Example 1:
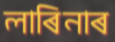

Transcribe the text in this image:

লাৰিনাৰ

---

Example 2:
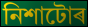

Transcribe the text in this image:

নিশাটোৰ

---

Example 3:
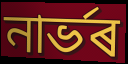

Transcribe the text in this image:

নাৰ্ভৰ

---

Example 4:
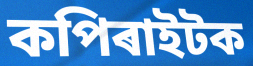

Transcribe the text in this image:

কপিৰাইটক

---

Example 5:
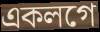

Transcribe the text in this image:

একলগে